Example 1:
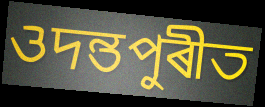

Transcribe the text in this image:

ওদন্তপুৰীত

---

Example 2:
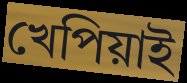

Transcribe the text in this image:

খেপিয়াই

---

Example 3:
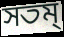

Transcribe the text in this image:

সতম্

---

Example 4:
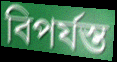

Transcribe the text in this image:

বিপৰ্যস্ত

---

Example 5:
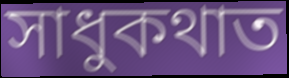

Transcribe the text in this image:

সাধুকথাত